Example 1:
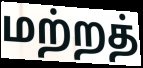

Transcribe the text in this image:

மற்றத்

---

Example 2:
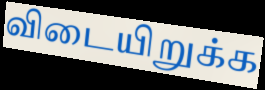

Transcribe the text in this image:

விடையிறுக்க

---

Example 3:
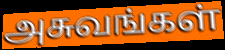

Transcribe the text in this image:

அசுவங்கள்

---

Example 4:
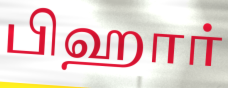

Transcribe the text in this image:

பிஹார்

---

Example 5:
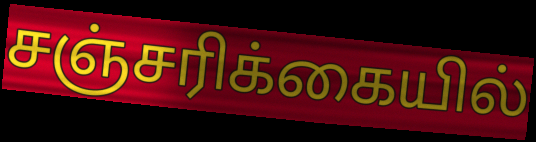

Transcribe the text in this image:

சஞ்சரிக்கையில்